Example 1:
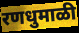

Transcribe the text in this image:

रणधुमाळी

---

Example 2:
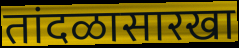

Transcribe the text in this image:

तांदळासारखा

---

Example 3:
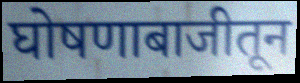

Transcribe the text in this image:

घोषणाबाजीतून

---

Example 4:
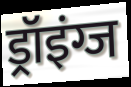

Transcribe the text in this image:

ड्रॉइंग्ज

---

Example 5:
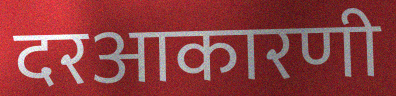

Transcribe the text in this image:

दरआकारणी